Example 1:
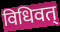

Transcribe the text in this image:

विधिवत्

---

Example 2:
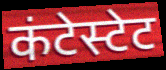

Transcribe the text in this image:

कंटेस्टेट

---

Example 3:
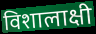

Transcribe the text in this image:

विशालाक्षी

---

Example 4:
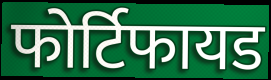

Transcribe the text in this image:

फोर्टिफायड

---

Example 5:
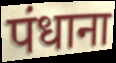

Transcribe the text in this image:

पंधाना